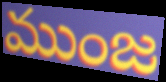
ముంజ